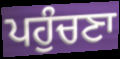
ਪਹੁੰਚਣਾ